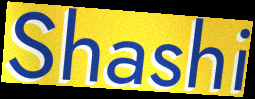
Shashi